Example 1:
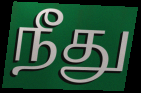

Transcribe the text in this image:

நீது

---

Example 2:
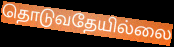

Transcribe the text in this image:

தொடுவதேயில்லை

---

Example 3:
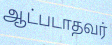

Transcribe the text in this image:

ஆட்படாதவர்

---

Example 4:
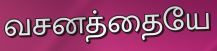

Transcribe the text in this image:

வசனத்தையே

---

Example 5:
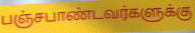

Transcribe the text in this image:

பஞ்சபாண்டவர்களுக்கு